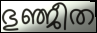
ഭുഞ്ജീത